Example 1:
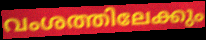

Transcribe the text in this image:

വംശത്തിലേക്കും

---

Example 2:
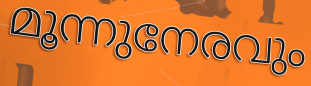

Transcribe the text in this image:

മൂന്നുനേരവും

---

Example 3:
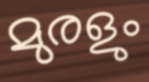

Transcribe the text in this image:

മുരളും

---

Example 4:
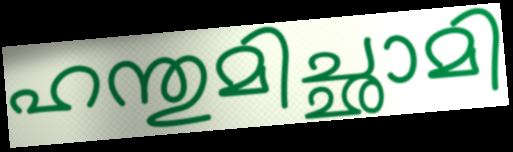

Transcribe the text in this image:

ഹന്തുമിച്ഛാമി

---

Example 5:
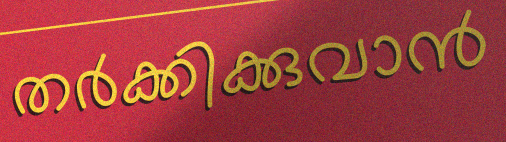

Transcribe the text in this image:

തർക്കിക്കുവാൻ